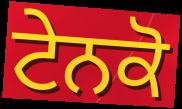
ਟੇਨਕੋ